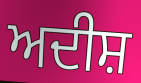
ਅਦੀਸ਼